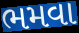
ભમવા